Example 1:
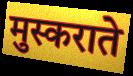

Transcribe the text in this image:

मुस्‍कराते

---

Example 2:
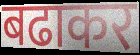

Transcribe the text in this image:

बढाकर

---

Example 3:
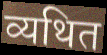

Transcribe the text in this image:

व्यथित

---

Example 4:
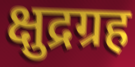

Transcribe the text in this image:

क्षुद्रग्रह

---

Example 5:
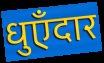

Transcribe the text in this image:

धुएँदार